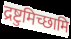
द्रष्टुमिच्छामि